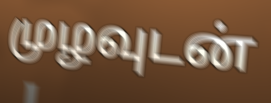
முழவுடன்